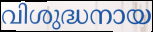
വിശുദ്ധനായ